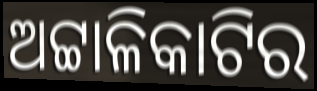
ଅଟ୍ଟାଳିକାଟିର